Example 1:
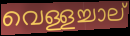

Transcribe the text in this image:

വെള്ളച്ചാല്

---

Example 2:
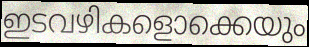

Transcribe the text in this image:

ഇടവഴികളൊക്കെയും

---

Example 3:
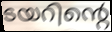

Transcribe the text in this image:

ടയറിന്റെ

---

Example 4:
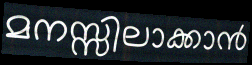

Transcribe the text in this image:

മനസ്സിലാക്കാൻ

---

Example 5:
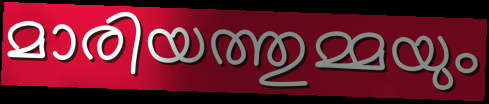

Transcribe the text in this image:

മാരിയത്തുമ്മയും